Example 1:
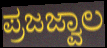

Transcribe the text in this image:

ಪ್ರಜಜ್ವಾಲ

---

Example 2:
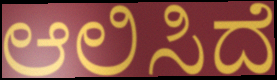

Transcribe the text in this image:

ಆಲಿಸಿದೆ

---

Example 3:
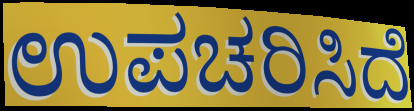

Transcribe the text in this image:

ಉಪಚರಿಸಿದೆ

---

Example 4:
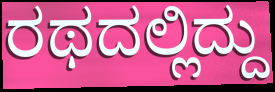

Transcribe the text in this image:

ರಥದಲ್ಲಿದ್ದು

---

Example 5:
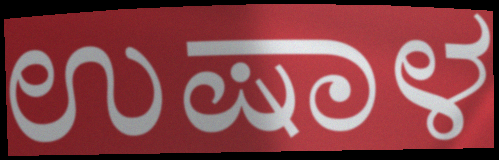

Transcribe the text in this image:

ಉಷಾಳ